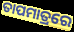
ତାପମାତ୍ରରେ